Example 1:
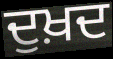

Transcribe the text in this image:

ਦੁਖ਼ਦ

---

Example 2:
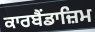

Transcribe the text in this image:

ਕਾਰਬੈਂਡਾਜ਼ਿਮ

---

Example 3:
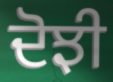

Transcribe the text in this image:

ਦੋਝੀ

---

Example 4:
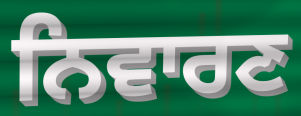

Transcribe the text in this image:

ਨਿਵਾਰਣ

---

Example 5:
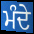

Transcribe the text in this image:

ਮੰਦੇ